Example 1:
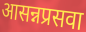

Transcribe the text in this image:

आसन्नप्रसवा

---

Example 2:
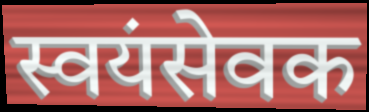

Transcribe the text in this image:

स्वयंसेवक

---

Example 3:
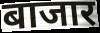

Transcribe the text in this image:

बाजार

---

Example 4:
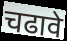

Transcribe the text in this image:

चढावे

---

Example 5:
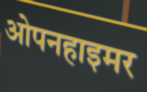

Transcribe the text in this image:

ओपनहाइमर